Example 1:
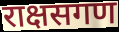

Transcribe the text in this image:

राक्षसगण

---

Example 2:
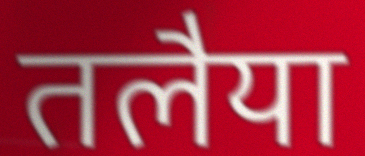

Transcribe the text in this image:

तलैया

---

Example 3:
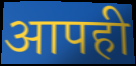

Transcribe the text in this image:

आपही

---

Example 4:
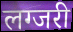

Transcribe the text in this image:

लग्जरी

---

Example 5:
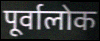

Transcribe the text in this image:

पूर्वालोक